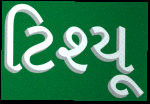
ટિશ્યૂ